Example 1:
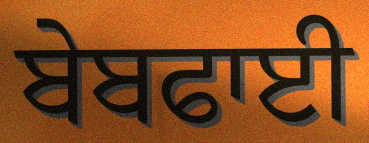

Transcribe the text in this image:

ਬੇਬਫਾਈ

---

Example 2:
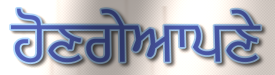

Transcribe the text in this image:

ਹੋਣਗੇਆਪਣੇ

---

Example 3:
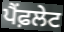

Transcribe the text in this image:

ਪੈਂਫ਼ਲੇਟ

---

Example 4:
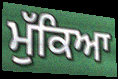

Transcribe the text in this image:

ਮੁੱਕਿਆ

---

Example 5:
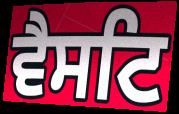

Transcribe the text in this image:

ਵੈਸਟਿ